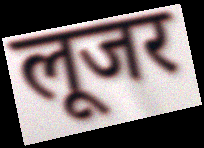
लूजर